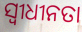
ସ୍ୱୀଧୀନତା